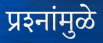
प्रश्‍नांमुळे